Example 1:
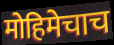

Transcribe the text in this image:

मोहिमेचाच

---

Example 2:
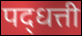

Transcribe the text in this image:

पद्धत्ती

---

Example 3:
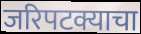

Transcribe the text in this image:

जरिपटक्याचा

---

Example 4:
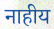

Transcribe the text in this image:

नाहीय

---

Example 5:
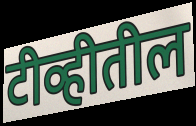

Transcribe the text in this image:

टीव्हीतील